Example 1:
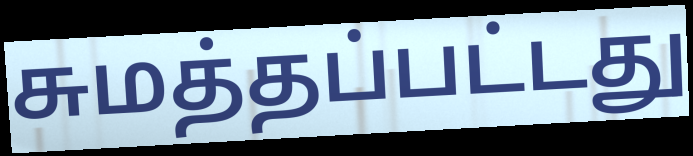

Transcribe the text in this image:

சுமத்தப்பட்டது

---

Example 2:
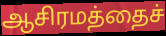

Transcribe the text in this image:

ஆசிரமத்தைச்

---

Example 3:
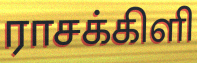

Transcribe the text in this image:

ராசக்கிளி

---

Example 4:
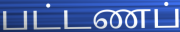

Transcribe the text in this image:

பட்டணப்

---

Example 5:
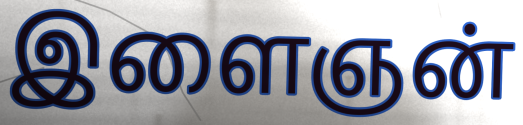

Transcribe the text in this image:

இளைஞன்